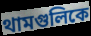
থামগুলিকে